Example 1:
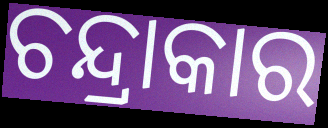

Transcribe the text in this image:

ଚନ୍ଦ୍ରାକାର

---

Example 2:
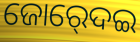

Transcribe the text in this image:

ଜୋର୍‍ଦେଇ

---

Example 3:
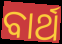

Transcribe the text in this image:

ବାର୍ଥ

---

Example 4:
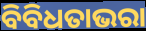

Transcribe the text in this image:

ବିବିଧତାଭରା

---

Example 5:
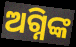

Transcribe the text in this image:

ଅଗ୍ନିଙ୍କ